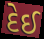
દેઈ